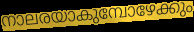
നാലരയാകുമ്പോഴേക്കും